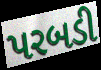
પરબડી